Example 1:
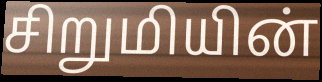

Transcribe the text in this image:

சிறுமியின்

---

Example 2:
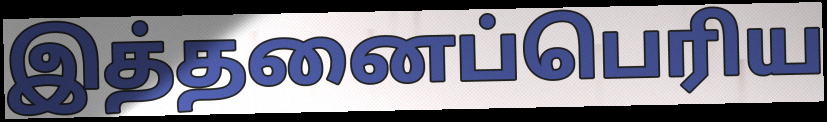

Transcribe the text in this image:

இத்தனைப்பெரிய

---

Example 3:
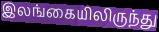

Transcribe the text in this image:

இலங்கையிலிருந்து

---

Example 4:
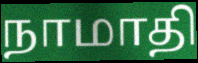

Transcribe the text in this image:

நாமாதி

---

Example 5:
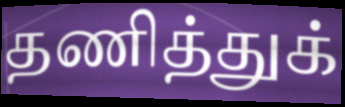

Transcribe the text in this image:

தணித்துக்